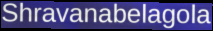
Shravanabelagola